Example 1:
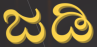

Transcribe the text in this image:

ಜಡಿ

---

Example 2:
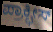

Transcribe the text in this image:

ಪ್ರಾಕ್ಟೀಸ್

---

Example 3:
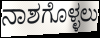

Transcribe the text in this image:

ನಾಶಗೊಳ್ಳಲು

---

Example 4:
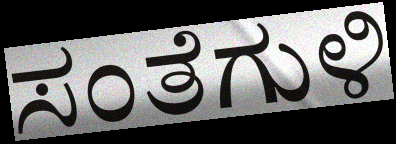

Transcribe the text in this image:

ಸಂತೆಗುಳಿ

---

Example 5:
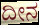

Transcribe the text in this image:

ದೀನ